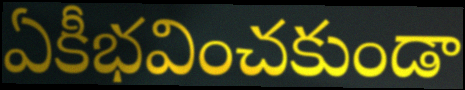
ఏకీభవించకుండా